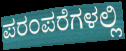
ಪರಂಪರೆಗಳಲ್ಲಿ